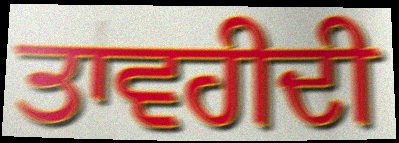
ਤਾਵਹੀਦੀ